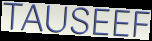
TAUSEEF